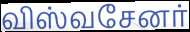
விஸ்வசேனர்